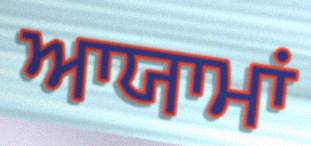
ਆਯਾਮਾਂ